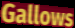
Gallows